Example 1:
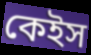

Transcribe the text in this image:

কেইস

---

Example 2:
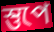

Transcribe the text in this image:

স্তুপে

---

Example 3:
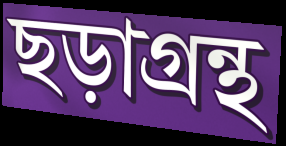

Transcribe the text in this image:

ছড়াগ্রন্থ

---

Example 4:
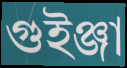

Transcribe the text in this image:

গুইঞ্জা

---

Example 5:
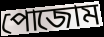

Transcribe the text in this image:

পোজোম